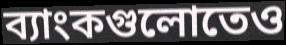
ব্যাংকগুলোতেও